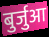
बुर्जुआ